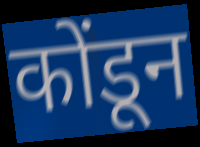
कोंडून